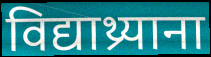
विद्याथ्र्याना